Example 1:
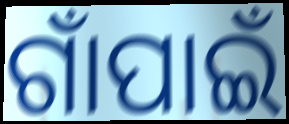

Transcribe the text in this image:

ଗାଁପାଇଁ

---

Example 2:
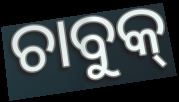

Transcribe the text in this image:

ଚାବୁକ୍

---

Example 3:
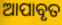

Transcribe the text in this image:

ଆପାବୃତ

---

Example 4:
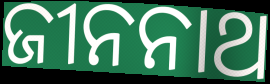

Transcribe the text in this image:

ଜୀନନାଥ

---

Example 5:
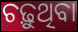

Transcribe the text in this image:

ଚଢ଼ୁଥିବା